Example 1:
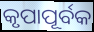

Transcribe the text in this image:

କୃପାପୂର୍ବକ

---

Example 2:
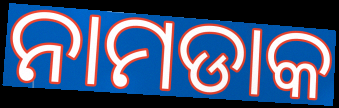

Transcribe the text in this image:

ନାମଡାକ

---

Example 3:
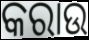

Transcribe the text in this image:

କରାଉ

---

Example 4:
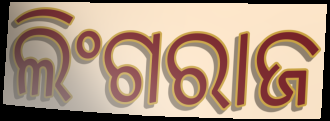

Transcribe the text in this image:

ଲିଂଗରାଜ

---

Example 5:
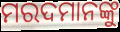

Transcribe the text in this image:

ମରଦମାନଙ୍କୁ